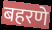
बहरणे